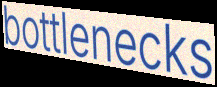
bottlenecks